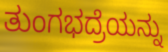
ತುಂಗಭದ್ರೆಯನ್ನು